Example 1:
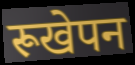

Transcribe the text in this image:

रूखेपन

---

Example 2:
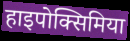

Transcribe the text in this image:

हाइपोक्सिमिया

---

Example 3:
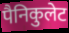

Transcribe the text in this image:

पैनिकुलेट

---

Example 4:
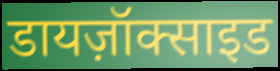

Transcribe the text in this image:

डायज़ॉक्साइड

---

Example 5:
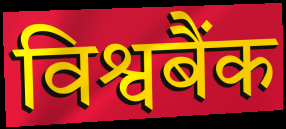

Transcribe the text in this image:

विश्वबैंक